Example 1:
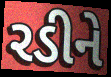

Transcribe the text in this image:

રડીને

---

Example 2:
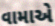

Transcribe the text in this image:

વામાએ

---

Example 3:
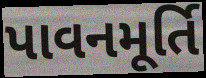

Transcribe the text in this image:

પાવનમૂર્તિ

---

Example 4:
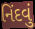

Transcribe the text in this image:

નિંદવું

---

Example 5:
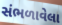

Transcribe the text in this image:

સંભળાવેલા